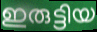
ഇരുട്ടിയ